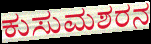
ಕುಸುಮಶರನ